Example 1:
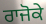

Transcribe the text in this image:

ਰਾਜੋਕੇ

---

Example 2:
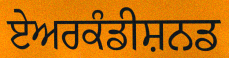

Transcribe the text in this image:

ਏਅਰਕੰਡੀਸ਼ਨਡ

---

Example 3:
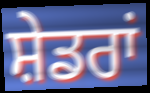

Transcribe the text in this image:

ਸ਼ੇਡਰਾਂ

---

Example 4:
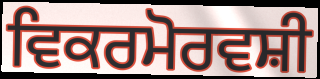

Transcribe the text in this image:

ਵਿਕਰਮੋਰਵਸ਼ੀ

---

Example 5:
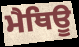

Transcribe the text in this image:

ਮੈਥਿਊ